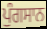
ਪੁੰਗਸਾਨ